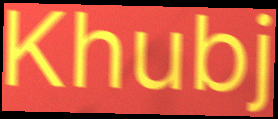
Khubj